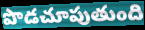
పొడచూపుతుంది